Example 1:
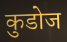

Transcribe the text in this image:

कुडोज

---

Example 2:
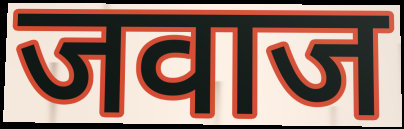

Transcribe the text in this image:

जवाज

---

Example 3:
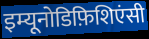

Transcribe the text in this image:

इम्यूनोडिफ़िशिएंसी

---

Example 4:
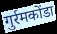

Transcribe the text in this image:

गुर्रमकोंडा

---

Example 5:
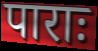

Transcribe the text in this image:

पाराः